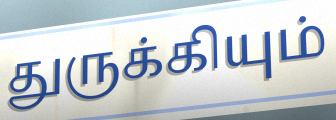
துருக்கியும்